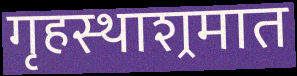
गृहस्थाश्रमात